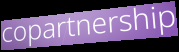
copartnership